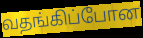
வதங்கிப்போன